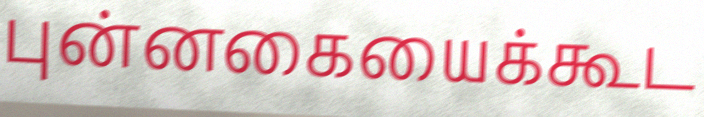
புன்னகையைக்கூட